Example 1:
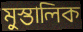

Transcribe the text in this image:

মুস্তালিক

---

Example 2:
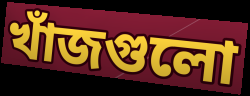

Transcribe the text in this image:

খাঁজগুলো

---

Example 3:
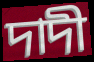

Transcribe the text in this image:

দাদী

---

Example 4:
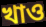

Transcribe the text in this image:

খাও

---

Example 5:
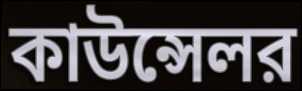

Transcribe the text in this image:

কাউন্সেলর